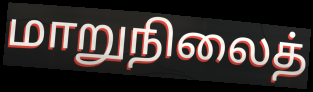
மாறுநிலைத்